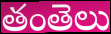
తంతెలు